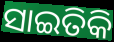
ସାଇତିକି